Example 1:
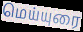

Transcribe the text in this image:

மெய்யுரை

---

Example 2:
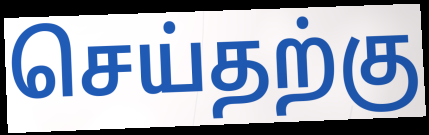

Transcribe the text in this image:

செய்தற்கு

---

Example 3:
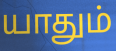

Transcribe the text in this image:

யாதும்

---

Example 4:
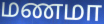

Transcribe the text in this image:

மணமா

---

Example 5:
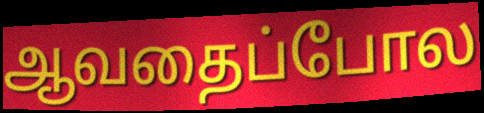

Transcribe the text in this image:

ஆவதைப்போல